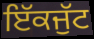
ਇੱਕਜੁੱਟ